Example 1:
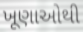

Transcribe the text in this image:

ખૂણાઓથી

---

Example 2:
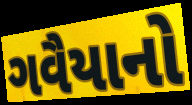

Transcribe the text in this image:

ગવૈયાનો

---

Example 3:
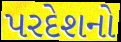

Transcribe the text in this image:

પરદેશનો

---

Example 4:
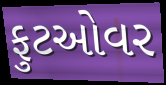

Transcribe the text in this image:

ફુટઓવર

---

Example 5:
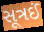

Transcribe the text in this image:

સૂત્રઈં